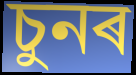
চুনৰ